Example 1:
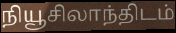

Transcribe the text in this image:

நியூசிலாந்திடம்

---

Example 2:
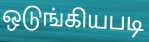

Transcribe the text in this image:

ஒடுங்கியபடி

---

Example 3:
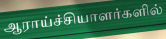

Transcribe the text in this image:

ஆராய்ச்சியாளர்களில்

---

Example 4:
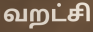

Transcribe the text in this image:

வறட்சி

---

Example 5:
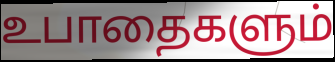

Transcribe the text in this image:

உபாதைகளும்